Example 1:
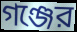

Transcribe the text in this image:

গঞ্জের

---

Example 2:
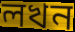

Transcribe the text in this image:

লখন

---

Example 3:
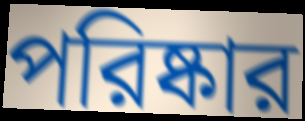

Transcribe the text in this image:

পরিষ্কার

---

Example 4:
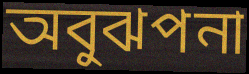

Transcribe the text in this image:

অবুঝপনা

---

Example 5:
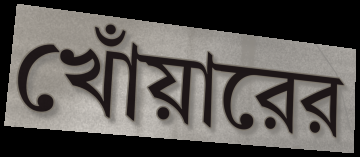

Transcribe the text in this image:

খোঁয়ারের